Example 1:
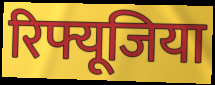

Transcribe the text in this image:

रिफ्यूजिया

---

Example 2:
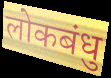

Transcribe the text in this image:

लोकबंधु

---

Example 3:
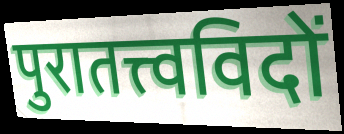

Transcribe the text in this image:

पुरातत्त्वविदों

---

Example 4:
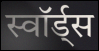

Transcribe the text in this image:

स्‍वॉर्ड्स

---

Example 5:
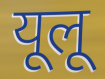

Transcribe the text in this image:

यूलू